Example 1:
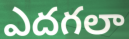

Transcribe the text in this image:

ఎదగలా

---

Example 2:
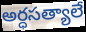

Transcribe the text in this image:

అర్ధసత్యాలే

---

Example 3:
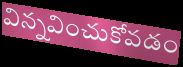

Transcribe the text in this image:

విన్నవించుకోవడం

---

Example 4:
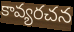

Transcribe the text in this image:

కావ్యరచన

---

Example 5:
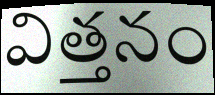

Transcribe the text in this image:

విత్తనం